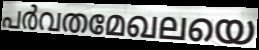
പർവതമേഖലയെ